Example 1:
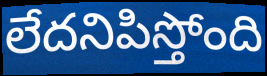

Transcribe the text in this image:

లేదనిపిస్తోంది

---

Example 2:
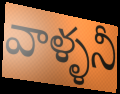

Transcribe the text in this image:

వాళ్ళనీ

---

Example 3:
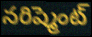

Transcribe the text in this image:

నరిష్మెంట్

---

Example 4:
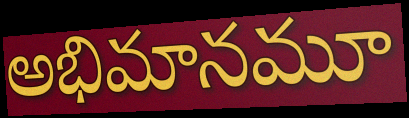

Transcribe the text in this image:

అభిమానమూ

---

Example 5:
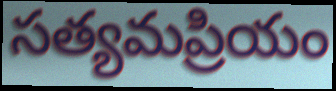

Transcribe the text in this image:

సత్యమప్రియం